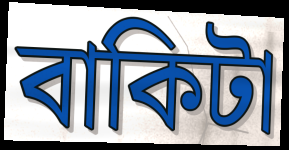
বাকিটা